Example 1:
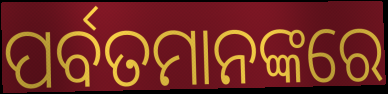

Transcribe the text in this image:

ପର୍ବତମାନଙ୍କରେ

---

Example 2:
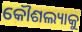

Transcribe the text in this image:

କୌଶଲ୍ୟାକୁ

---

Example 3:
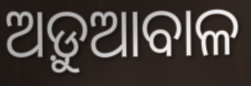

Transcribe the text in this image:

ଅଡ଼ୁଆବାଳ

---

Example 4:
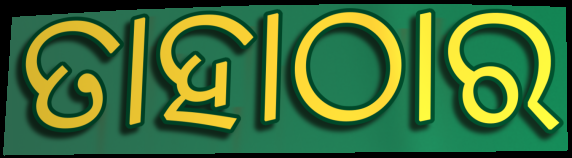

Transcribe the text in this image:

ତାହାଠାର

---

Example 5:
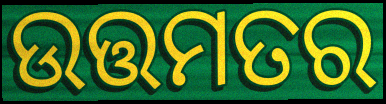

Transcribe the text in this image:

ଉତ୍ତମତର